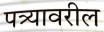
पत्र्यावरील